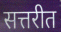
सत्तरीत